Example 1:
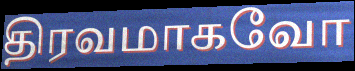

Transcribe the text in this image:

திரவமாகவோ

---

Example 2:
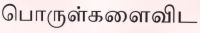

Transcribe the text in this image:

பொருள்களைவிட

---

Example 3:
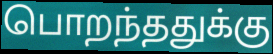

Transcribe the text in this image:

பொறந்ததுக்கு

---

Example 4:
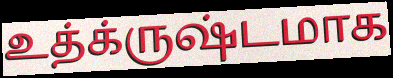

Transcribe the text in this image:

உத்க்ருஷ்டமாக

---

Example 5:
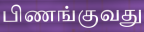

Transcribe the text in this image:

பிணங்குவது